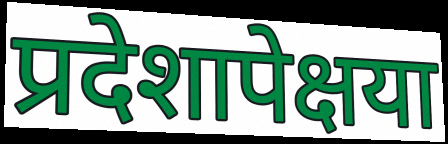
प्रदेशापेक्षया